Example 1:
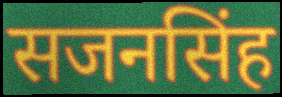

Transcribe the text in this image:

सजनसिंह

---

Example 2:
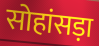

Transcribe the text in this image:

सोहांसड़ा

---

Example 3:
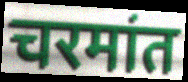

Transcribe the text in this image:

चरमांत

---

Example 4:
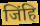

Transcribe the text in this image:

जिंहि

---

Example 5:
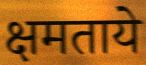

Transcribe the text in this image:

क्षमताये